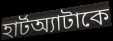
হার্টঅ্যাটাকে